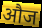
औज